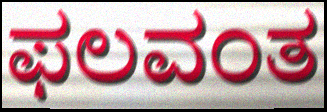
ಫಲವಂತ